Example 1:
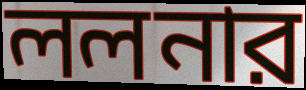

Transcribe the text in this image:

ললনার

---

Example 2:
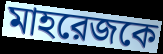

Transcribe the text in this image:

মাহরেজকে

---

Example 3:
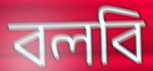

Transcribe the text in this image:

বলবি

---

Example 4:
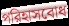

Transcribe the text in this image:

পরিহাসবোধ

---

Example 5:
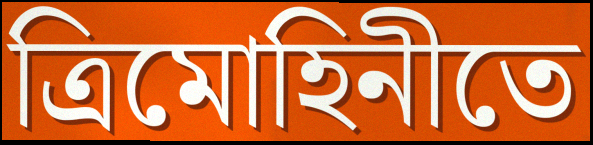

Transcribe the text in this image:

ত্রিমোহিনীতে